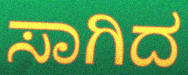
ಸಾಗಿದ